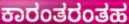
ಕಾರಂತರಂತಹ